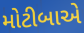
મોટીબાએ